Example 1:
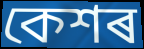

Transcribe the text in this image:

কেশৰ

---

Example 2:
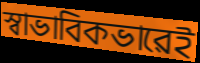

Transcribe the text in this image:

স্বাভাবিকভাৱেই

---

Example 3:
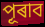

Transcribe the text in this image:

পূৰাব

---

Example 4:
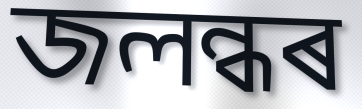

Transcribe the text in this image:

জলন্ধৰ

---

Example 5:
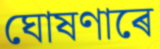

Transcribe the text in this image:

ঘোষণাৰে